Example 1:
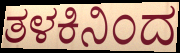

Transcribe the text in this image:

ತಳಕಿನಿಂದ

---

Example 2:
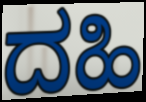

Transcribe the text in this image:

ದಹಿ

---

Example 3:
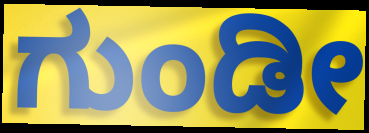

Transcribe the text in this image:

ಗುಂಡೀ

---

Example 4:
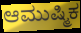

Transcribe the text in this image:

ಆಮುಷ್ಮಿಕ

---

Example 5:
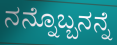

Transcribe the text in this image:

ನನ್ನೊಬ್ಬನನ್ನೆ